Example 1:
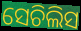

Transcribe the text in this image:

ସେଚିଲିସ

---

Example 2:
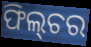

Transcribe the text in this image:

ଫିଲ୍‌ଚର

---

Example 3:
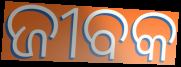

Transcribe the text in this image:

ଜୀବକ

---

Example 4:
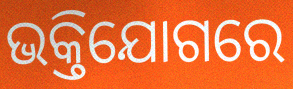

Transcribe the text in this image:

ଭକ୍ତିଯୋଗରେ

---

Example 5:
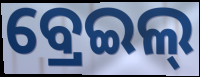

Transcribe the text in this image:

ବ୍ରେଇଲ୍